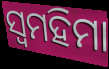
ସ୍ୱମହିମା